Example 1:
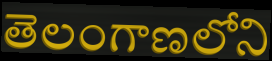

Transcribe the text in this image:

తెలంగాణలోని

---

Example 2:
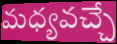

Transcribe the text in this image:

మధ్యవచ్చే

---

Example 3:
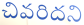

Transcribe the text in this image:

చివరిదని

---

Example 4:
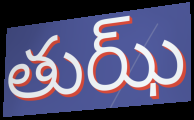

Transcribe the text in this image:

తుఝ్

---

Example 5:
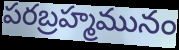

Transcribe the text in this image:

పరబ్రహ్మమునం